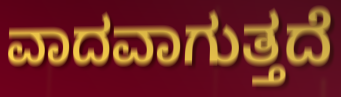
ವಾದವಾಗುತ್ತದೆ